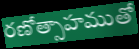
రణోత్సాహముతో